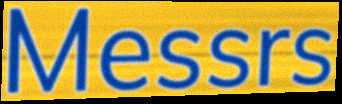
Messrs